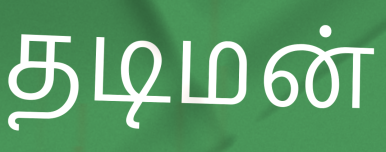
தடிமன்